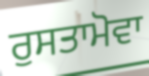
ਰੁਸਤਾਮੋਵਾ